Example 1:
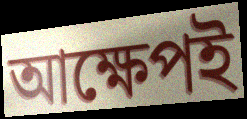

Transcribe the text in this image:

আক্ষেপই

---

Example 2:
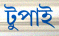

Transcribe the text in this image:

টুপাই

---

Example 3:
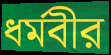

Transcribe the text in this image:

ধর্মবীর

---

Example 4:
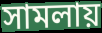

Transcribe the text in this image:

সামলায়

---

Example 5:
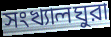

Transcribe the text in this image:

সংখ্যালঘুরা